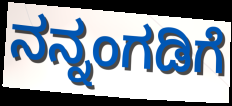
ನನ್ನಂಗಡಿಗೆ